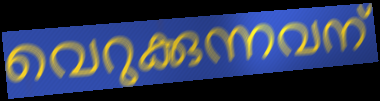
വെറുക്കുന്നവന്